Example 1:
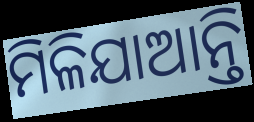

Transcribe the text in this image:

ମିଳିଯାଆନ୍ତି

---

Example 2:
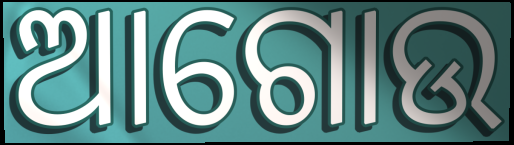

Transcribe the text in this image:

ଆଗୋଉ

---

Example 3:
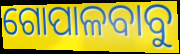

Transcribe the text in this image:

ଗୋପାଳବାବୁ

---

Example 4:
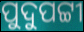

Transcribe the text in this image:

ପୁଦୁପଟ୍ଟୀ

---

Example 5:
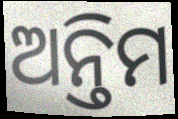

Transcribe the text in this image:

ଅନ୍ତିମ